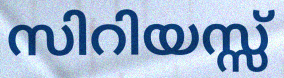
സിറിയസ്സ്